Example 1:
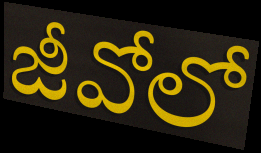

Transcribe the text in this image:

జీవోలో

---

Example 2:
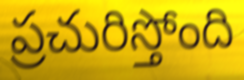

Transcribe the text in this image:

ప్రచురిస్తోంది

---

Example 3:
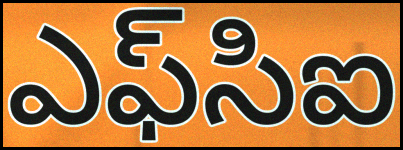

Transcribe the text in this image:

ఎఫ్‌సిఐ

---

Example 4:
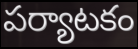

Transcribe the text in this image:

పర్యాటకం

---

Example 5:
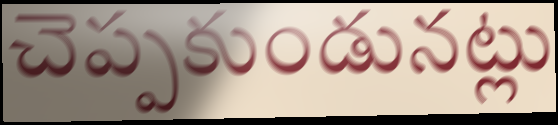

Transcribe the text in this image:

చెప్పకుండునట్లు